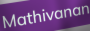
Mathivanan